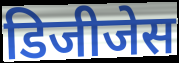
डिजीजेस